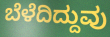
ಬೆಳೆದಿದ್ದುವು